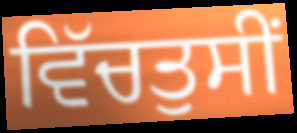
ਵਿੱਚਤੁਸੀਂ